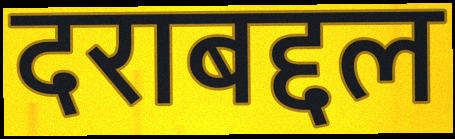
दराबद्दल